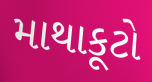
માથાકૂટો